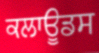
ਕਲਾਊਡਸ